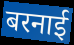
बरनाई